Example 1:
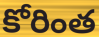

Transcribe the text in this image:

కోరింత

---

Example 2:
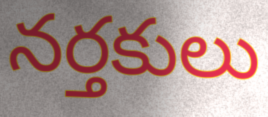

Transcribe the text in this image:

నర్తకులు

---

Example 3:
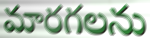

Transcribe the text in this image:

మారగలను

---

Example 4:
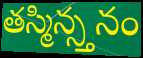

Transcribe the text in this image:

తస్మిన్స్తనం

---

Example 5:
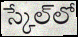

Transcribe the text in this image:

స్కేల్‌లో